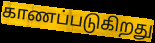
காணப்படுகிறது